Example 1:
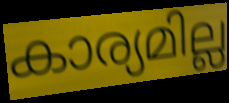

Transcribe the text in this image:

കാര്യമില്ല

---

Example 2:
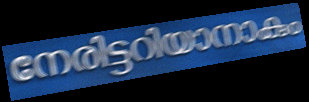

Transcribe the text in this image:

നേരിട്ടറിയാനാകും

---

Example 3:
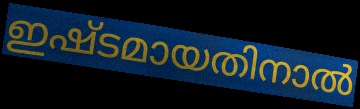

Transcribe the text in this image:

ഇഷ്ടമായതിനാൽ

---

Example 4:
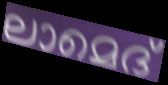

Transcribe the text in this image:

ലാമെദ്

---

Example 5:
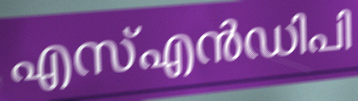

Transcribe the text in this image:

എസ്എൻഡിപി